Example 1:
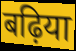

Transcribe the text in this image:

बढ़िया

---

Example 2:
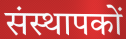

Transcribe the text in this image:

संस्थापकों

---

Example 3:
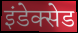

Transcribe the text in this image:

इंडेक्सेड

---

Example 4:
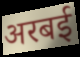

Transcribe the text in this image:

अरबई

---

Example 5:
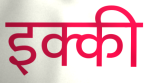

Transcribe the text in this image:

इक्की